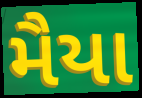
મૈયા